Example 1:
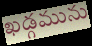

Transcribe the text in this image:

ఖడ్గమును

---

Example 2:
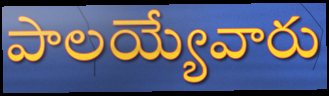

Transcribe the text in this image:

పాలయ్యేవారు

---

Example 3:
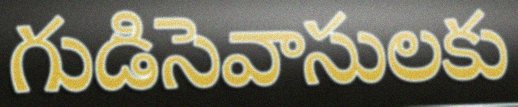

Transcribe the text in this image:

గుడిసెవాసులకు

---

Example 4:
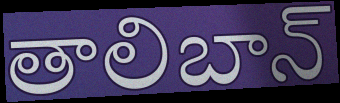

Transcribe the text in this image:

తాలిబాన్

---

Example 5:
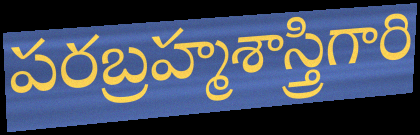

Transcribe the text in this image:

పరబ్రహ్మశాస్త్రిగారి